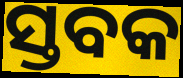
ସ୍ତବକ